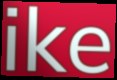
ike